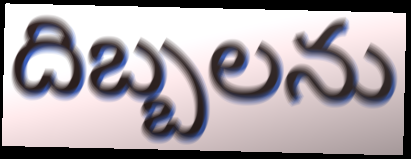
దిబ్బలను